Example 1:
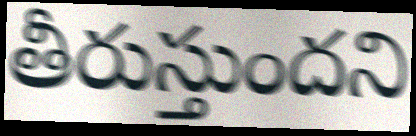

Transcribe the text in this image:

తీరుస్తుందని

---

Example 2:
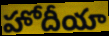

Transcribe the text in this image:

హోదీయా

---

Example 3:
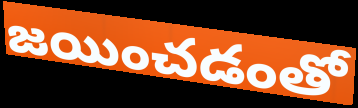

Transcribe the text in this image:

జయించడంతో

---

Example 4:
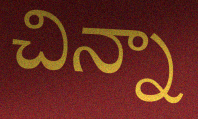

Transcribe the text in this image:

చిన్నా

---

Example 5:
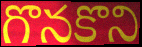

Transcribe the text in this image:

గొనకొని